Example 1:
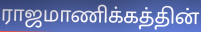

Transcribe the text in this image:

ராஜமாணிக்கத்தின்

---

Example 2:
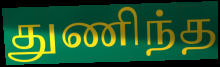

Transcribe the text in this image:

துணிந்த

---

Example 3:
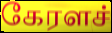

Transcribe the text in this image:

கேரளச்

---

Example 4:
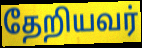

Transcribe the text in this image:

தேறியவர்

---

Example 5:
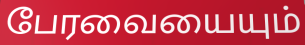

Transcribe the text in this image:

பேரவையையும்